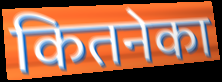
कितनेका